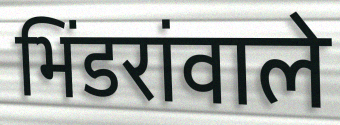
भिंडरांवाले